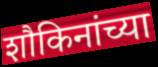
शौकिनांच्या